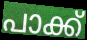
പാക്ക്